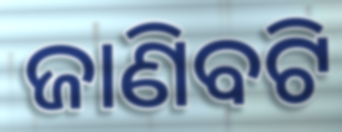
ଜାଣିବଟି